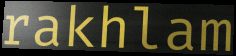
rakhlam